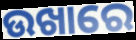
ଉଖାରେ